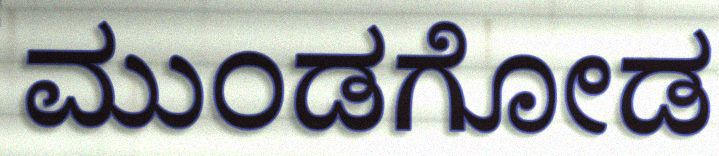
ಮುಂಡಗೋಡ